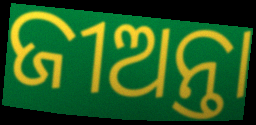
ଜୀଅନ୍ତା